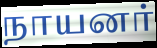
நாயனர்